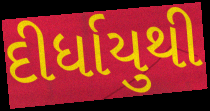
દીર્ધાયુથી